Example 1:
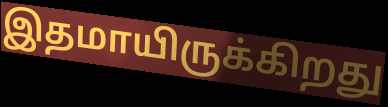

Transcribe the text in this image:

இதமாயிருக்கிறது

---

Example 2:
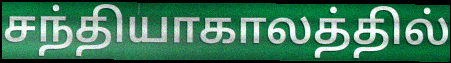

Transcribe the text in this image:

சந்தியாகாலத்தில்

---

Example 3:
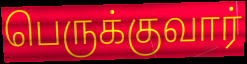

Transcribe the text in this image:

பெருக்குவார்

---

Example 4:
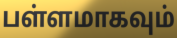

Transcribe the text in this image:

பள்ளமாகவும்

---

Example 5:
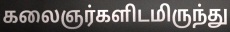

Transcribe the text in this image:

கலைஞர்களிடமிருந்து